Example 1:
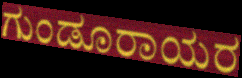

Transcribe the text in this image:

ಗುಂಡೂರಾಯರ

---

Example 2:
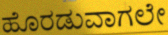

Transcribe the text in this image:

ಹೊರಡುವಾಗಲೇ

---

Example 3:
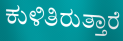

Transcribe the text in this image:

ಕುಳಿತಿರುತ್ತಾರೆ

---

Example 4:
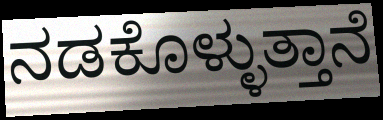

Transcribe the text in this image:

ನಡಕೊಳ್ಳುತ್ತಾನೆ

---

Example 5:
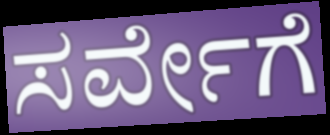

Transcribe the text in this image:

ಸರ್ವೇಗೆ